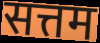
सत्तम